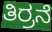
ತಿರ್ರನೆ